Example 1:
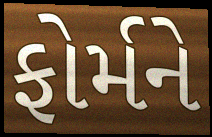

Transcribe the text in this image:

ફોર્મને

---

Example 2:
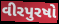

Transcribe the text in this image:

વીરપુરષો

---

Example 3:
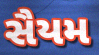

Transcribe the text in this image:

સૈયમ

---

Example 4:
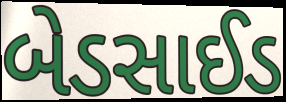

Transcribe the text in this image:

બેડસાઈડ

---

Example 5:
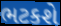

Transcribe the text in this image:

ભટકશે